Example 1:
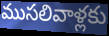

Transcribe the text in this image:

ముసలివాళ్లకు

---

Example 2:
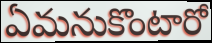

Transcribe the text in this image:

ఏమనుకొంటారో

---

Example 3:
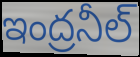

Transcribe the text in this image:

ఇంద్రనీల్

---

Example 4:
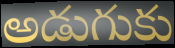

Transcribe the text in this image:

అడుగుకు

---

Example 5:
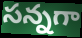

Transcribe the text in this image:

సన్నగా